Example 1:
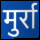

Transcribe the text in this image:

मुर्रा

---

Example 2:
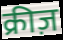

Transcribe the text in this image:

क्रीज़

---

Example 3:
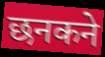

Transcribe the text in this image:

छनकने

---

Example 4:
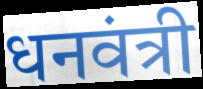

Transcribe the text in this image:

धनवंत्री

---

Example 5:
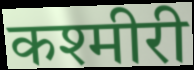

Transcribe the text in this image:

कश्‍मीरी